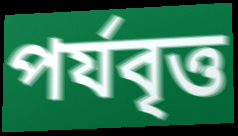
পর্যবৃত্ত